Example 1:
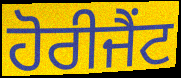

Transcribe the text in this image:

ਹੋਰੀਜੈਂਟ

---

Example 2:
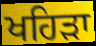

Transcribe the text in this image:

ਖਹਿਡ਼ਾ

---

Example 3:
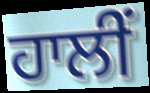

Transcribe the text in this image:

ਹਾਲੀਂ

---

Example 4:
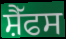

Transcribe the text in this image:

ਸ਼ੈੱਫਸ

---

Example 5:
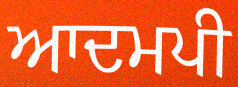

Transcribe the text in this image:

ਆਦਮਪੀ